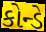
કોન્ડે